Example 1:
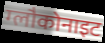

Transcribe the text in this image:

ग्लौकोनाइट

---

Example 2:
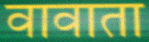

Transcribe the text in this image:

वावाता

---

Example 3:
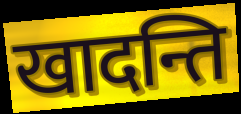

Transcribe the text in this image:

खादन्ति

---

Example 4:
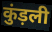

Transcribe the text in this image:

कुंड़ली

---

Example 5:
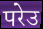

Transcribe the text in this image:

परेउ